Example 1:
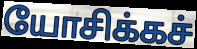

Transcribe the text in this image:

யோசிக்கச்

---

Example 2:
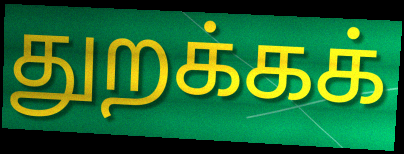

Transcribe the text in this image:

துறக்கக்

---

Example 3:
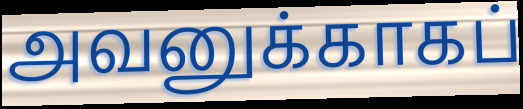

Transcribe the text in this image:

அவனுக்காகப்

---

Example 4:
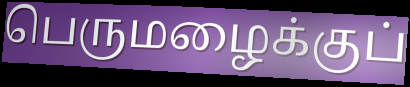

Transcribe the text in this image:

பெருமழைக்குப்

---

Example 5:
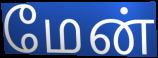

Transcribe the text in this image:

மேன்